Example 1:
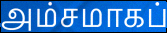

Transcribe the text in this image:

அம்சமாகப்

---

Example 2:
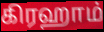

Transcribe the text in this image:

கிரஹாம்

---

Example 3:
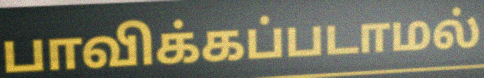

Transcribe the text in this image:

பாவிக்கப்படாமல்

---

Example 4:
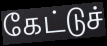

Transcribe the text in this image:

கேட்டுச்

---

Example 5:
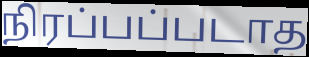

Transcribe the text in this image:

நிரப்பப்படாத